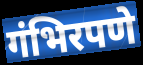
गंभिरपणे